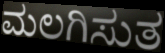
ಮಲಗಿಸುತ